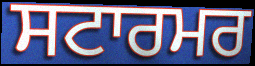
ਸਟਾਰਮਰ